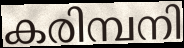
കരിമ്പനി